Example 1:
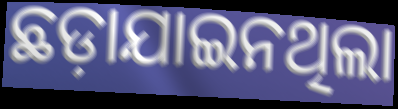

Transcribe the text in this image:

ଛଡ଼ାଯାଇନଥିଲା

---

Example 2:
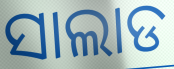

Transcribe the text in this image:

ସାଲାଡ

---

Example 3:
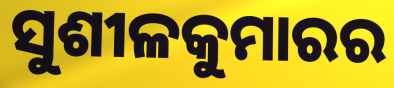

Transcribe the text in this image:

ସୁଶୀଳକୁମାରର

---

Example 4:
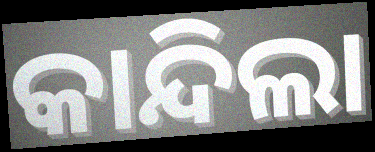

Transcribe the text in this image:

କାନ୍ଦିଲା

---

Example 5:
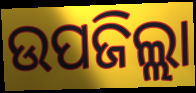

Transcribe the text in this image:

ଉପଜିଲ୍ଲା